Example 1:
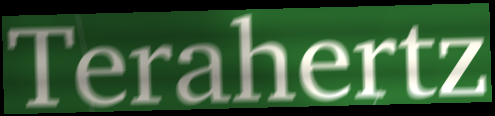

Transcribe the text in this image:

Terahertz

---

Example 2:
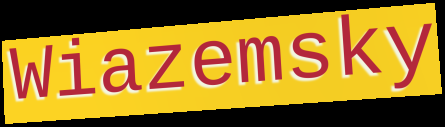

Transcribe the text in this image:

Wiazemsky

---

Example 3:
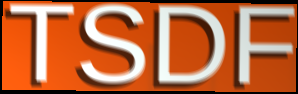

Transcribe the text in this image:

TSDF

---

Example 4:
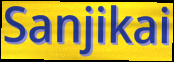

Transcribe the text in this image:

Sanjikai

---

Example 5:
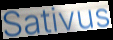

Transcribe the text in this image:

Sativus